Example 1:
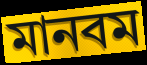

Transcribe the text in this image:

মানবম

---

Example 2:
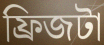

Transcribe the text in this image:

ফ্রিজটা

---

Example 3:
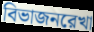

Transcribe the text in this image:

বিভাজনরেখা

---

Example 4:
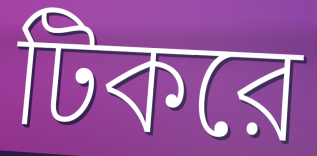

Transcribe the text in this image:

টিকরে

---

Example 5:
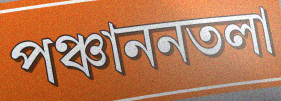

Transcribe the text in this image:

পঞ্চাননতলা